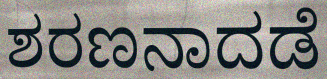
ಶರಣನಾದಡೆ